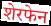
शेरफेन